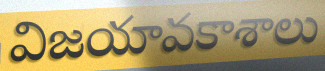
విజయావకాశాలు